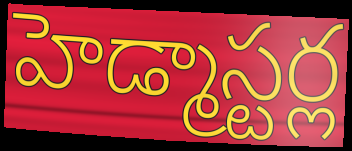
హెడ్మాస్టర్ల